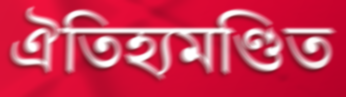
ঐতিহ্যমণ্ডিত